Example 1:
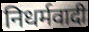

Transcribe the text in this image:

निधर्मवादी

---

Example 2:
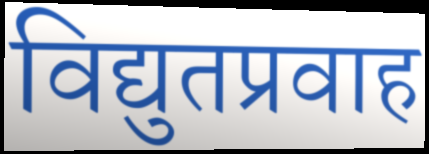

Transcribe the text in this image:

विद्युतप्रवाह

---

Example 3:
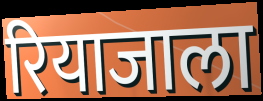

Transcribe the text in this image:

रियाजाला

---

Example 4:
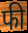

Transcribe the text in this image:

फी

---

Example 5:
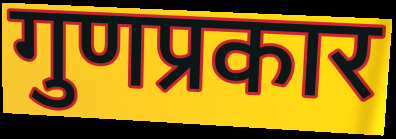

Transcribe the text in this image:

गुणप्रकार